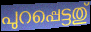
പുറപ്പെട്ടതു്